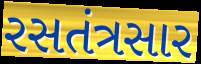
રસતંત્રસાર